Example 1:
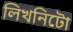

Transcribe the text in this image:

লিখনিটো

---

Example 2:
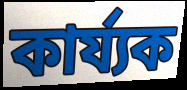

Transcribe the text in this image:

কাৰ্য্যক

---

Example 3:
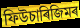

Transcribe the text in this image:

ফিউচাৰিজিমৰ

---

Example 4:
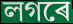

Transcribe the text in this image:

লগৰে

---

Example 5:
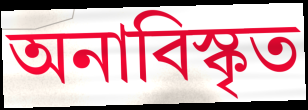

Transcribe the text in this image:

অনাবিস্কৃত